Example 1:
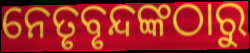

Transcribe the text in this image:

ନେତୃବୃନ୍ଦଙ୍କଠାରୁ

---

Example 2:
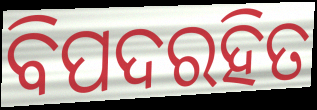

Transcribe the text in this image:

ବିପଦରହିତ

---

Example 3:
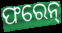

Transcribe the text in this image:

ଫରେନ୍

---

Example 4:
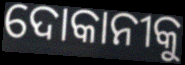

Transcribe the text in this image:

ଦୋକାନୀକୁ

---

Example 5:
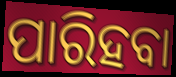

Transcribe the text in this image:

ପାରିହବା